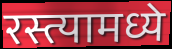
रस्त्यामध्ये